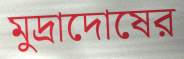
মুদ্রাদোষের